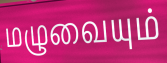
மழுவையும்